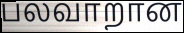
பலவாறான